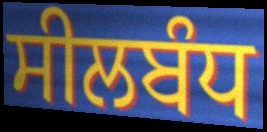
ਸੀਲਬੰਧ